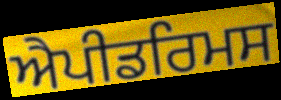
ਐਪੀਡਰਿਮਸ